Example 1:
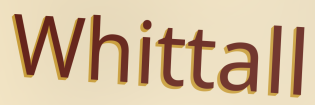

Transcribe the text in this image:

Whittall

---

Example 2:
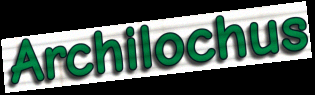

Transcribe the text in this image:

Archilochus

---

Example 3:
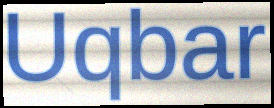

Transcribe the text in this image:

Uqbar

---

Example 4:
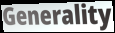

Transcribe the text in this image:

Generality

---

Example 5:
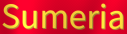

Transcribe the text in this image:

Sumeria